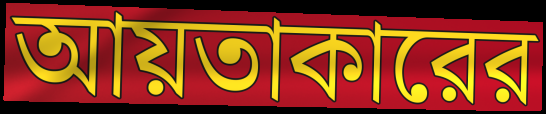
আয়তাকারের